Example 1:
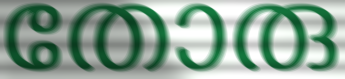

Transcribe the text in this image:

തോരു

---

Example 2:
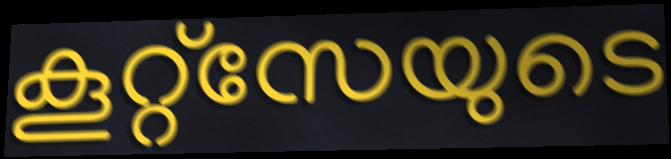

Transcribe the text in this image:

കൂറ്റ്സേയുടെ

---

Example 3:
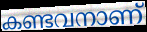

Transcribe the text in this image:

കണ്ടവനാണ്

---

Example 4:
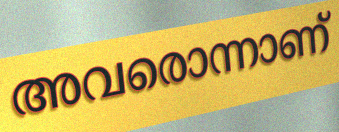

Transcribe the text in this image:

അവരൊന്നാണ്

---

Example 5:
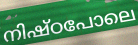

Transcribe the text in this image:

നിഷ്ഠപോലെ